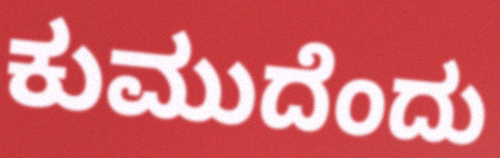
ಕುಮುದೆಂದು